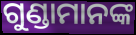
ଗୁଣ୍ଡାମାନଙ୍କ